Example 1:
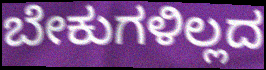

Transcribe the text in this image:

ಬೇಕುಗಳಿಲ್ಲದ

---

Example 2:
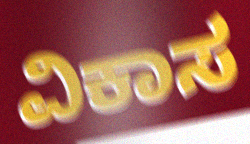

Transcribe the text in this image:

ವಿಕಾಸ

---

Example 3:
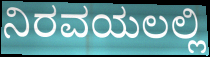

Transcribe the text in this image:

ನಿರವಯಲಲ್ಲಿ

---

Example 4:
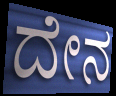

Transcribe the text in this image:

ದೇನ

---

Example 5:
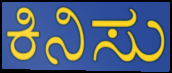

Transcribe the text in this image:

ಕಿನಿಸು